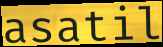
asatil